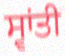
ਸ੍ਵਾਂਤੀ